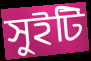
সুইটি